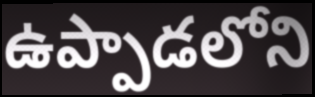
ఉప్పాడలోని